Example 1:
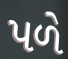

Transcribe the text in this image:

પળે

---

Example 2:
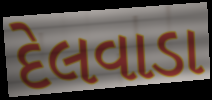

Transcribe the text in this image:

દેલવાડા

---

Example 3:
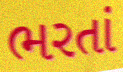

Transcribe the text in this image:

ભરતાં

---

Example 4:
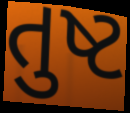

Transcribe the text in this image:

તુષ્ટ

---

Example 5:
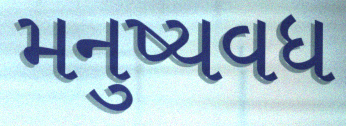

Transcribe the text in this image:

મનુષ્યવધ